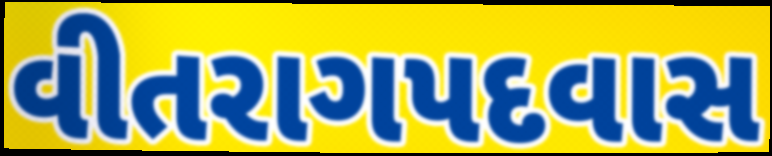
વીતરાગપદવાસ